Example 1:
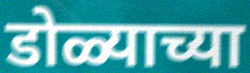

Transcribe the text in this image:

डोळ्याच्या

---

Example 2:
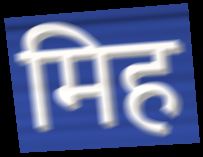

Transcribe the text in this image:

मिह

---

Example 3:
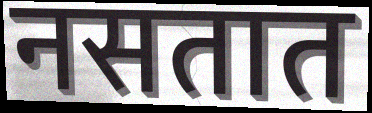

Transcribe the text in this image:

नसतात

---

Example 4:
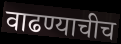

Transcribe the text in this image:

वाढण्याचीच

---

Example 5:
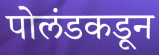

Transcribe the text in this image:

पोलंडकडून